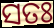
ସତଃ